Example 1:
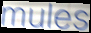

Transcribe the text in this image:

mules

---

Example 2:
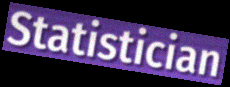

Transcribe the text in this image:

Statistician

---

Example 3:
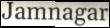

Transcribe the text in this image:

Jamnagar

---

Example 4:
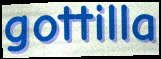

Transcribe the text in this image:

gottilla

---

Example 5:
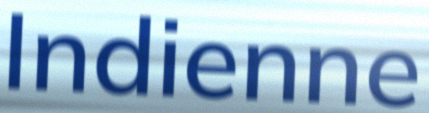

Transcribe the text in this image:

Indienne